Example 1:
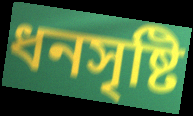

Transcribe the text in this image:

ধনসৃষ্টি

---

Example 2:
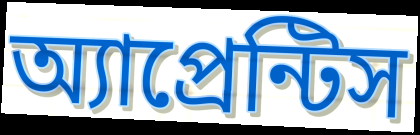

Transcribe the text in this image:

অ্যাপ্রেন্টিস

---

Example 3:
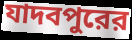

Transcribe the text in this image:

যাদবপুরের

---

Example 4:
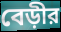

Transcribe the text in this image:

বেড়ীর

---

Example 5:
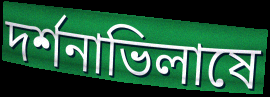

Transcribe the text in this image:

দর্শনাভিলাষে